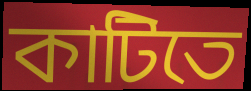
কাটিতে